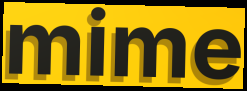
mime